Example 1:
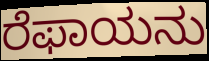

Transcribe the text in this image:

ರೆಫಾಯನು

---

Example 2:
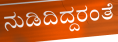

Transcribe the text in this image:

ನುಡಿದಿದ್ದರಂತೆ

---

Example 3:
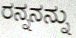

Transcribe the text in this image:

ರನ್ನನನ್ನು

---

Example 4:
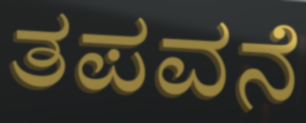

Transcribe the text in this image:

ತಪವನೆ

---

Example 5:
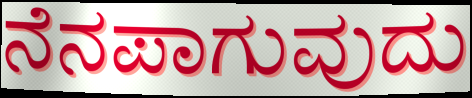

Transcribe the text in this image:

ನೆನಪಾಗುವುದು